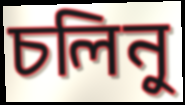
চলিনু